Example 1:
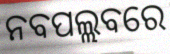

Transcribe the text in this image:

ନବପଲ୍ଲବରେ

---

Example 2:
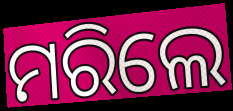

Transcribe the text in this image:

ମରିଲେ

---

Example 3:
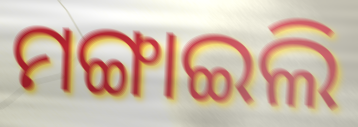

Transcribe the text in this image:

ମଙ୍ଗାଇଲି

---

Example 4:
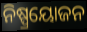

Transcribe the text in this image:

ନିଷ୍ପ୍ରୟୋଜନ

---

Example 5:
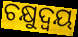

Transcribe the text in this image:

ଚକ୍ଷୁଦ୍ୱୟ